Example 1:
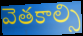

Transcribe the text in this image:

వెతకాల్సి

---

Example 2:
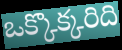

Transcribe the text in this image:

ఒక్కొక్కరిది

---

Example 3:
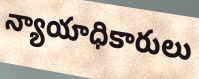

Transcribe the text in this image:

న్యాయాధికారులు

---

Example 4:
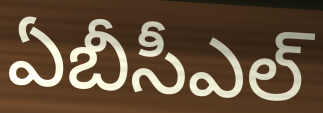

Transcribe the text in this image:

ఏబీసీఎల్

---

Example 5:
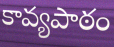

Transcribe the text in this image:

కావ్యపాఠం